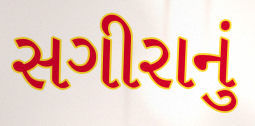
સગીરાનું